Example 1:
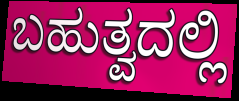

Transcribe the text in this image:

ಬಹುತ್ವದಲ್ಲಿ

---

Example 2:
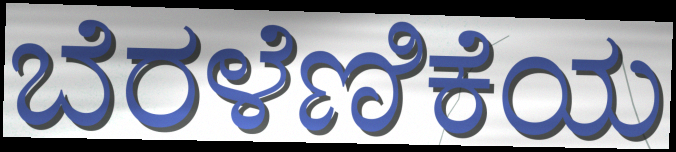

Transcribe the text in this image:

ಬೆರಳೆಣಿಕೆಯ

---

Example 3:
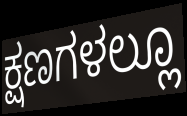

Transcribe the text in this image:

ಕ್ಷಣಗಳಲ್ಲೂ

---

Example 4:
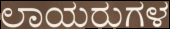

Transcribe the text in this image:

ಲಾಯರುಗಳ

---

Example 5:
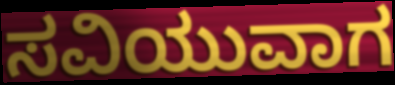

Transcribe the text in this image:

ಸವಿಯುವಾಗ